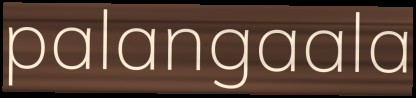
palangaala